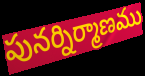
పునర్నిర్మాణము